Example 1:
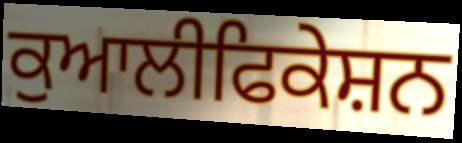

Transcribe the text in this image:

ਕੁਆਲੀਫਿਕੇਸ਼ਨ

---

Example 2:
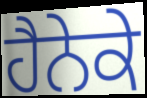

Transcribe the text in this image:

ਹੈਨੇਕੇ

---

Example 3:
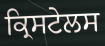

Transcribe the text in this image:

ਕ੍ਰਿਸਟੇਲਸ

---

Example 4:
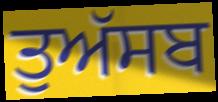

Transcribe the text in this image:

ਤੁਅੱਸਬ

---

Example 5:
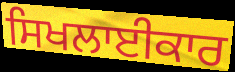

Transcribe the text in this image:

ਸਿਖਲਾਈਕਾਰ